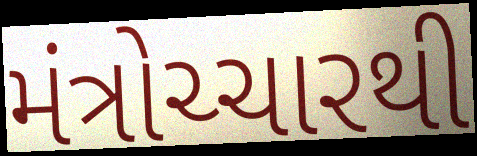
મંત્રોચ્ચારથી